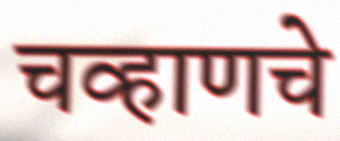
चव्हाणचे